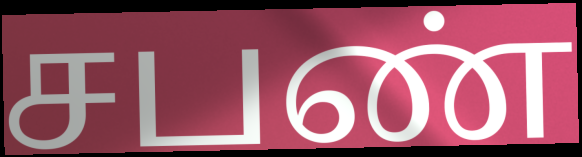
சபண்